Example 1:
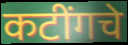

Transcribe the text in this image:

कटींगचे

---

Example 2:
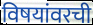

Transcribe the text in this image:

विषयांवरची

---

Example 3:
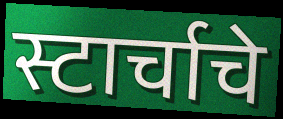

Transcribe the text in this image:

स्टार्चाचे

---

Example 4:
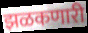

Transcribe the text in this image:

झळकणारी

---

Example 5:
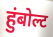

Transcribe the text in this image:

हुंबोल्ट